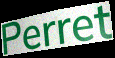
Perret